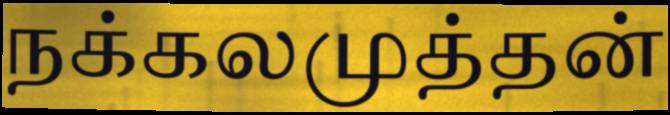
நக்கலமுத்தன்